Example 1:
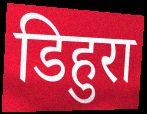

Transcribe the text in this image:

डिहुरा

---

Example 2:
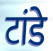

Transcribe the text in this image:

टांडे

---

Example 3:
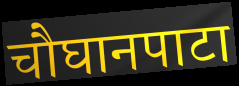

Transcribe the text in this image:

चौघानपाटा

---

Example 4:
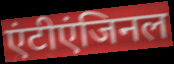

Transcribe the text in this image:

एंटीएंजिनल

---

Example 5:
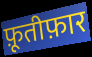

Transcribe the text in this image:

फ़ूतीफ़ार